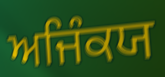
ਅਜਿੰਕਯ